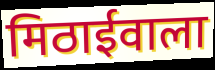
मिठाईवाला